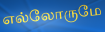
எல்லோருமே